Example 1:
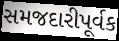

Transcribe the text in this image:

સમજદારીપૂર્વક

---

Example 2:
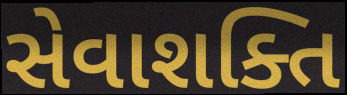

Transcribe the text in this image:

સેવાશક્તિ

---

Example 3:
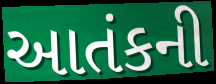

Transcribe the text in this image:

આતંકની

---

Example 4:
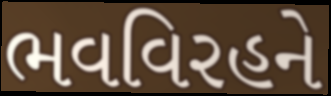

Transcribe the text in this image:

ભવવિરહને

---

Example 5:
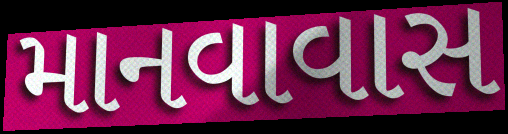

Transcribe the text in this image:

માનવાવાસ